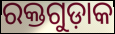
ରକ୍ତଗୁଡ଼ାକ